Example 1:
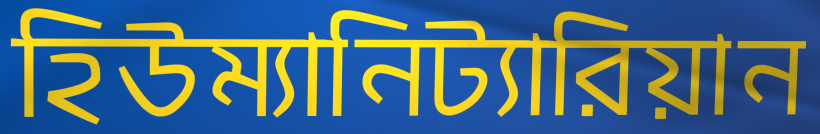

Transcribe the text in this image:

হিউম্যানিট্যারিয়ান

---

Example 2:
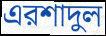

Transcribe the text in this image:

এরশাদুল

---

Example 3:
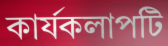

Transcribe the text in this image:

কার্যকলাপটি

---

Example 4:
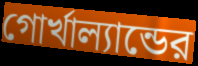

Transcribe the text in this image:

গোর্খাল্যান্ডের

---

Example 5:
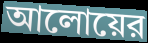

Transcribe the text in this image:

আলোয়ের